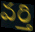
వర్తి